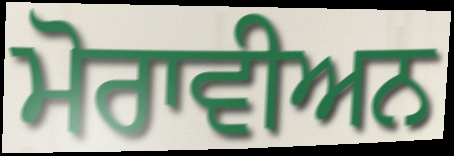
ਮੋਰਾਵੀਅਨ